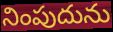
నింపుదును